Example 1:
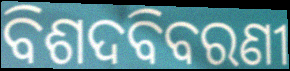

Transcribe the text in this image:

ବିଶଦବିବରଣୀ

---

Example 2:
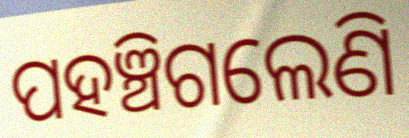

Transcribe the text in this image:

ପହଞ୍ଚିଗଲେଣି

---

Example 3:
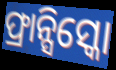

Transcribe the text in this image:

ଫ୍ରାନ୍ସିସ୍କୋ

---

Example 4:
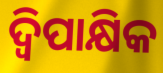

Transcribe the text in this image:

ଦ୍ବିପାକ୍ଷିକ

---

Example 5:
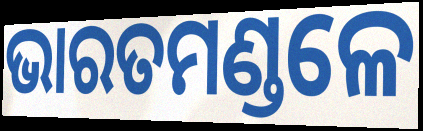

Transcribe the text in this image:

ଭାରତମଣ୍ଡଳେ